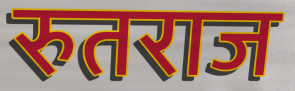
रुतराज